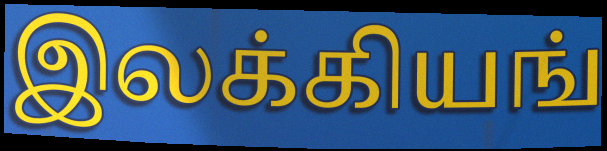
இலக்கியங்